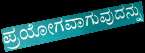
ಪ್ರಯೋಗವಾಗುವುದನ್ನು